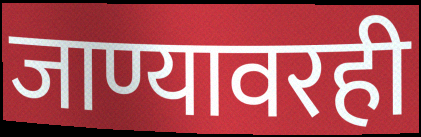
जाण्यावरही